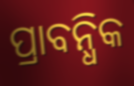
ପ୍ରାବନ୍ଧିକ